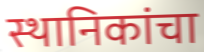
स्थानिकांचा